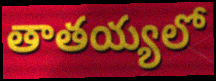
తాతయ్యలో